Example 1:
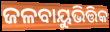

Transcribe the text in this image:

ଜଳବାୟୁଭିତ୍ତିକ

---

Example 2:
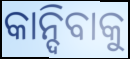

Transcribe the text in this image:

କାନ୍ଦିବାକୁ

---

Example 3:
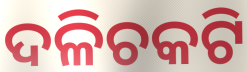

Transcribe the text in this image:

ଦଳିଚକଟି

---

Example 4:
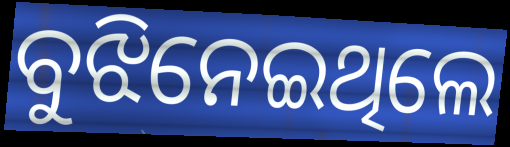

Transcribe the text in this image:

ବୁଝିନେଇଥିଲେ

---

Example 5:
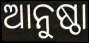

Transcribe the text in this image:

ଆନୁଷ୍ଠା